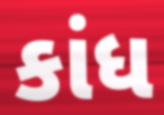
કાંધ